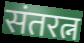
संतरत्न